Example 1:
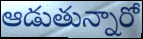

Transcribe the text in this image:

ఆడుతున్నారో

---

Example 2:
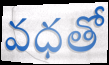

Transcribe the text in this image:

వధతో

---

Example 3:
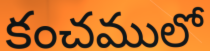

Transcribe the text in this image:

కంచములో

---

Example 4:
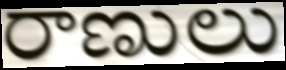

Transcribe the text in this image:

రాణులు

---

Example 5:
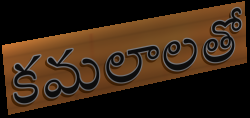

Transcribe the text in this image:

కమలాలతో